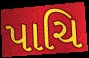
પાચિ